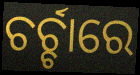
ଚର୍ଚ୍ଚାରେ